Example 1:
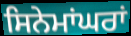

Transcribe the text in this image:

ਸਿਨੇਮਾਂਘਰਾਂ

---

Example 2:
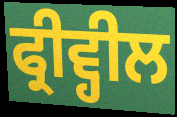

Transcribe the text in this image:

ਫ੍ਰੀਵ੍ਹੀਲ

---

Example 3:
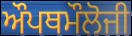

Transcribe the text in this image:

ਔਪਥਮੌਲੋਜੀ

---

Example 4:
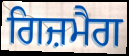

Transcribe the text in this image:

ਗਿਜ਼ਮੈਗ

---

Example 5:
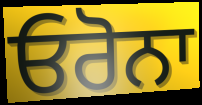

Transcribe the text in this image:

ਓਰੋਨਾ